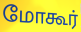
மோகூர்